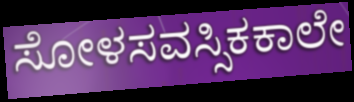
ಸೋಳಸವಸ್ಸಿಕಕಾಲೇ